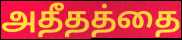
அதீதத்தை